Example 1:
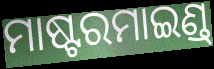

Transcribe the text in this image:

ମାଷ୍ଟରମାଇଣ୍ଡ୍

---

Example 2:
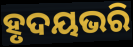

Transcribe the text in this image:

ହୃଦୟଭରି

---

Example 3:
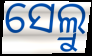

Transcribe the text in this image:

ସେଲ୍ରୁ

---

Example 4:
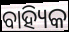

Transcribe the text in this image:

ବାହ୍ୟିକ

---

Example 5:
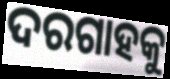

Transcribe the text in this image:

ଦରଗାହକୁ